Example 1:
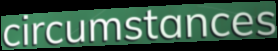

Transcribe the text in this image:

circumstances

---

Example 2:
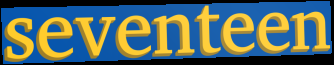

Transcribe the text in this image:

seventeen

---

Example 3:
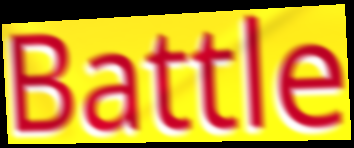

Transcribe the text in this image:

Battle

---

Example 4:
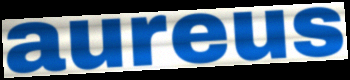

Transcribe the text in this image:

aureus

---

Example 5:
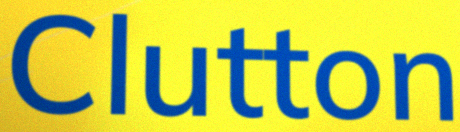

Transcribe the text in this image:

Clutton